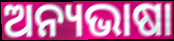
ଅନ୍ୟଭାଷା